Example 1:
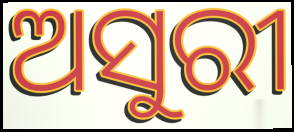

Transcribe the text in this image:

ଅସୁରୀ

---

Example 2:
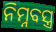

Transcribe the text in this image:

ନିମ୍ନବସ୍ତ୍ର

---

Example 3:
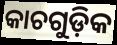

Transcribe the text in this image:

କାଚଗୁଡ଼ିକ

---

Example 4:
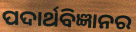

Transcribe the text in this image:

ପଦାର୍ଥବିଜ୍ଞାନର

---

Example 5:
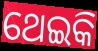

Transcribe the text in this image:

ଥେଇକି